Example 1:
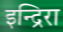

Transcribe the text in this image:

इन्द्रिरा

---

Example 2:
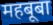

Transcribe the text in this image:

महबूबा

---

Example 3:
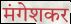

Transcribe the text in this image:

मंगेशकर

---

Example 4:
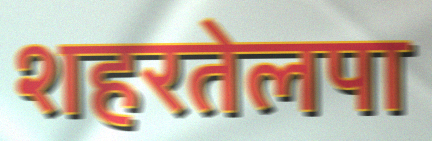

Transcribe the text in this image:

शहरतेलपा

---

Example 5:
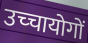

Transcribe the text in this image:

उच्‍चायोगों